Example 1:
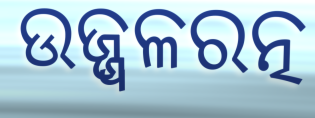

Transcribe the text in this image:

ଉଜ୍ଜ୍ୱଳରତ୍ନ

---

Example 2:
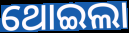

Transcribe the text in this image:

ଥୋଇଲା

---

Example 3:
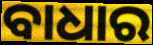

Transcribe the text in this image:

ବାଧାର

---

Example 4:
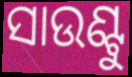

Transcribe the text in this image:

ସାଉଣ୍ଟୁ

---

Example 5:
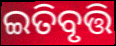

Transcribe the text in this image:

ଇତିବୃତ୍ତି